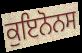
ਕੁਇਨੋਨਸ